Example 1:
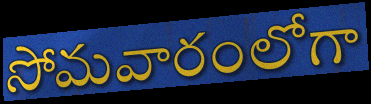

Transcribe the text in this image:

సోమవారంలోగా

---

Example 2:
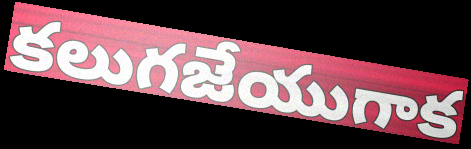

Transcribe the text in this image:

కలుగజేయుగాక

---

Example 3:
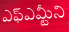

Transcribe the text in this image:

ఎఫ్ఎమ్టీని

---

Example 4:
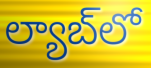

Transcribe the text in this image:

ల్యాబ్‌లో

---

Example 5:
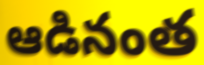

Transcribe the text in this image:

ఆడినంత